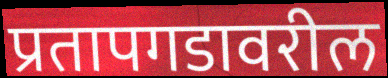
प्रतापगडावरील